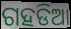
ଗହଡିଆ